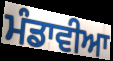
ਮੰਡਾਵੀਆ